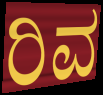
ರಿವ